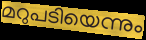
മറുപടിയെന്നും